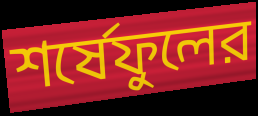
শর্ষেফুলের